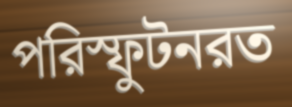
পরিস্ফুটনরত